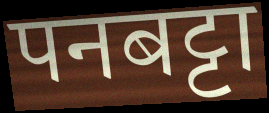
पनबट्टा